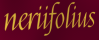
neriifolius